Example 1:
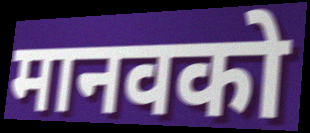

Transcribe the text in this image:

मानवको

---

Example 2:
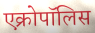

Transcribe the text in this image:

एक्रोपॉलिस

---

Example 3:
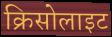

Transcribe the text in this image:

क्रिसोलाइट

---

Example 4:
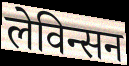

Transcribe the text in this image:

लेविन्सन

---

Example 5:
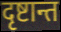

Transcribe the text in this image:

दृष्टान्त